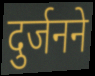
दुर्जनने